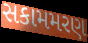
સકામમરણ